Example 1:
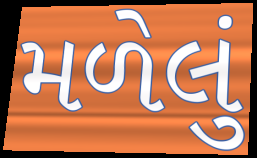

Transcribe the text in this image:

મળેલું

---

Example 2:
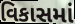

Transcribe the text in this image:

વિકાસમાં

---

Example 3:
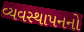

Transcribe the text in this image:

વ્યવસ્થાપનનો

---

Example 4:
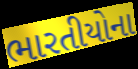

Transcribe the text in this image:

ભારતીયોના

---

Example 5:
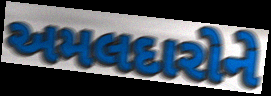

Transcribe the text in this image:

અમલદારોને